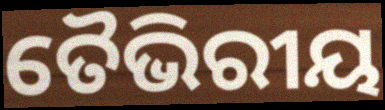
ତୈଭିରୀୟ